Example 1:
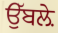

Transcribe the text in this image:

ਉੱਬਲ਼ੇ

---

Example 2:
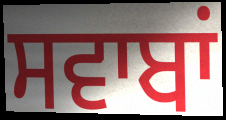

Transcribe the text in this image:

ਸਵਾਬਾਂ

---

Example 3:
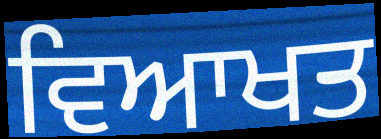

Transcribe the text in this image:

ਵਿਆਖਤ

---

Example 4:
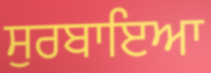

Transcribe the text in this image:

ਸੁਰਬਾਇਆ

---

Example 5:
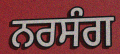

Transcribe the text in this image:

ਨਰਸੰਗ